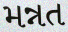
મન્નત